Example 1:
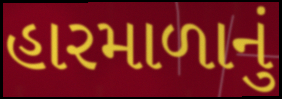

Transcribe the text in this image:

હારમાળાનું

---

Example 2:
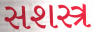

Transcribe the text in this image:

સશસ્ત્ર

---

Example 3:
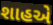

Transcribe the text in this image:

શાહએ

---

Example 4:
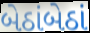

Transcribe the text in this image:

બેઠાંબેઠાં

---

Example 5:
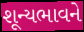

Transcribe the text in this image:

શૂન્યભાવને